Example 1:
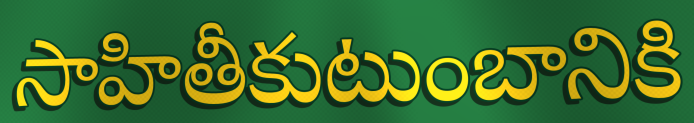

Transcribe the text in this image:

సాహితీకుటుంబానికి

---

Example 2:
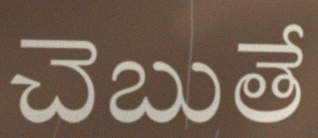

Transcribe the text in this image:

చెబుతే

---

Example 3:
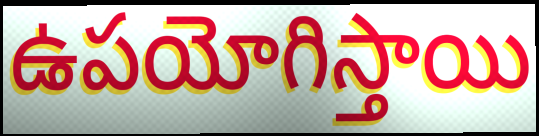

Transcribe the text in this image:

ఉపయోగిస్తాయి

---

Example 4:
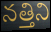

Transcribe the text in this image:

నత్తిని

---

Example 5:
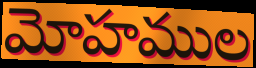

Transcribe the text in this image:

మోహముల